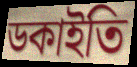
ডকাইতি